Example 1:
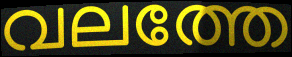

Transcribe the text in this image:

വലത്തേ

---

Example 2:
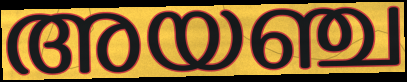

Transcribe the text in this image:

അയഞ്ച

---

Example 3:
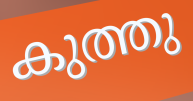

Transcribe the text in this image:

കുത്തു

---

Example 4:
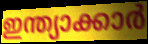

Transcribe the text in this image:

ഇന്ത്യാക്കാർ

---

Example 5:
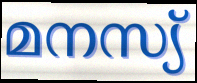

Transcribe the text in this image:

മനസ്യ്